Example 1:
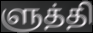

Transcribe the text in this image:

ளுத்தி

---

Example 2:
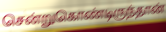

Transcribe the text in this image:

சென்றுகொண்டிருந்தான்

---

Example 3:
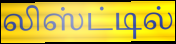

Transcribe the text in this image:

லிஸ்ட்டில்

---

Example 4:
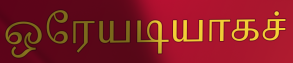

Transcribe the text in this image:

ஒரேயடியாகச்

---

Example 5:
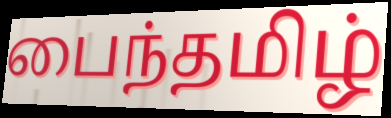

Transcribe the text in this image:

பைந்தமிழ்